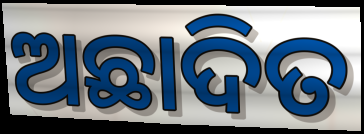
ଅଛାଦିତ